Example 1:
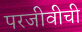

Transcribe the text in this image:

परजीवीची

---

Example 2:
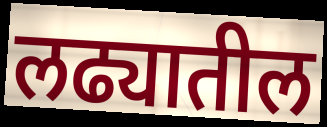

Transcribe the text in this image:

लढ्यातील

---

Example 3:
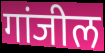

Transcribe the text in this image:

गांजील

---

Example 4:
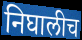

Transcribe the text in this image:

निघालीच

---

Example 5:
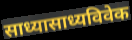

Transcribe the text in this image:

साध्यासाध्यविवेक